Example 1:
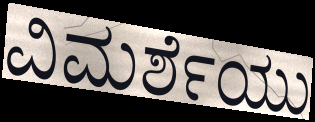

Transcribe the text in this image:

ವಿಮರ್ಶೆಯು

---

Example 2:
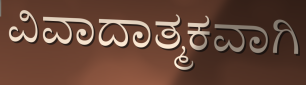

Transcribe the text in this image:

ವಿವಾದಾತ್ಮಕವಾಗಿ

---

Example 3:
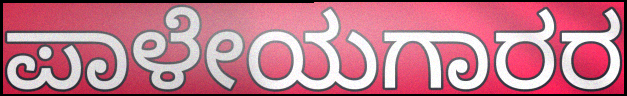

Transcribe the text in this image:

ಪಾಳೇಯಗಾರರ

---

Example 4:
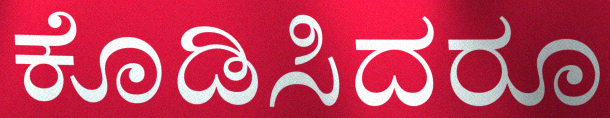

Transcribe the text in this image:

ಕೊಡಿಸಿದರೂ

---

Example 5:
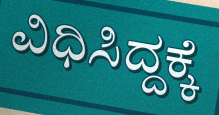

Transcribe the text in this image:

ವಿಧಿಸಿದ್ದಕ್ಕೆ